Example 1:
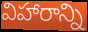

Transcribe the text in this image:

విహారాన్ని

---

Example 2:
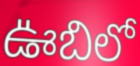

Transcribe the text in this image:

ఊబిలో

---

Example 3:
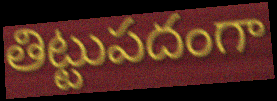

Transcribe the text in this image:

తిట్టుపదంగా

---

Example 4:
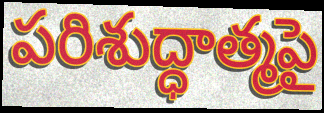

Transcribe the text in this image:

పరిశుద్ధాత్మపై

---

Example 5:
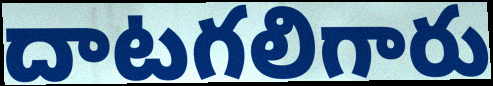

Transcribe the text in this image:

దాటగలిగారు